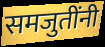
समजुतींनी